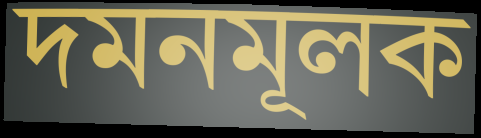
দমনমূলক